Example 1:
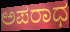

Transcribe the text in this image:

ಅಪರಾಧ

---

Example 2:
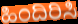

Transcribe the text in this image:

ಹಿಂದಿರಿಸಿ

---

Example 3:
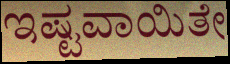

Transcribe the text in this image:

ಇಷ್ಟವಾಯಿತೇ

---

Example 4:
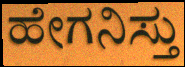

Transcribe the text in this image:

ಹೇಗನಿಸ್ತು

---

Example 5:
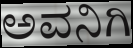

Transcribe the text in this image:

ಅವನಿಗಿ